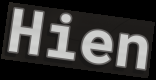
Hien